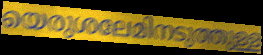
യെരുശലേമിനടുത്തുള്ള